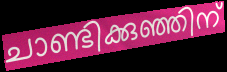
ചാണ്ടിക്കുഞ്ഞിന്